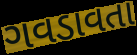
ગવડાવતા